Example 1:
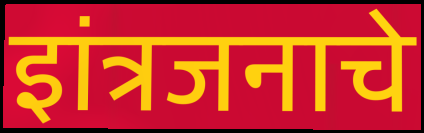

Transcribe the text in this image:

इांत्रजनाचे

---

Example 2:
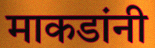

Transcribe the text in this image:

माकडांनी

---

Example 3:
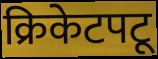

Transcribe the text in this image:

क्रिकेटपटू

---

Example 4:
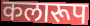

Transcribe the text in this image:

कलारूप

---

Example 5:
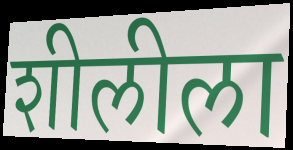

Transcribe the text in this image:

शीलीला